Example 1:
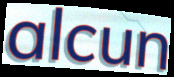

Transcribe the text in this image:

alcun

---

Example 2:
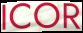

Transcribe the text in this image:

ICOR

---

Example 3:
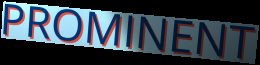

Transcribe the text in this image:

PROMINENT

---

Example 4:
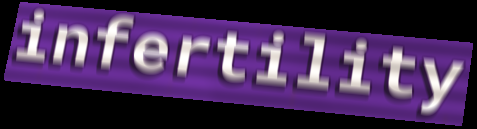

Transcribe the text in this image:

infertility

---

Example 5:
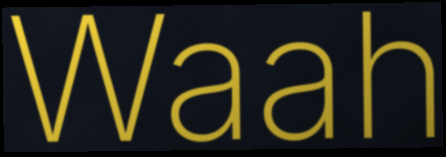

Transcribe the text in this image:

Waah